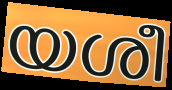
യശീ